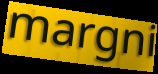
margni